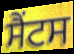
ਸੈਂਟਸ